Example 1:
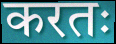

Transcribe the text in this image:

करतः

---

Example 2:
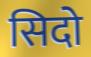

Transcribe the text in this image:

सिदो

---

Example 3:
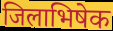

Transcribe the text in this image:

जिलाभिषेक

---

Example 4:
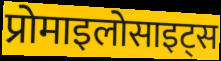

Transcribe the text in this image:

प्रोमाइलोसाइट्स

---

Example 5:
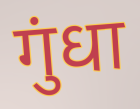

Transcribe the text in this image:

गुंधा